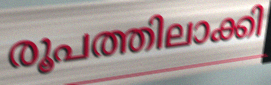
രൂപത്തിലാക്കി